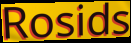
Rosids